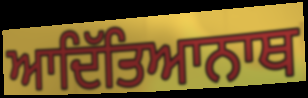
ਆਦਿੱਤਿਆਨਾਥ